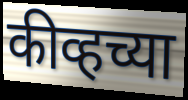
कीव्हच्या